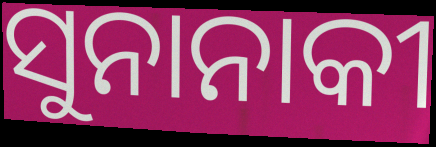
ସୁନାନାକୀ